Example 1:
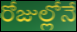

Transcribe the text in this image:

రోజుల్లోనే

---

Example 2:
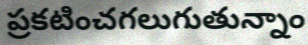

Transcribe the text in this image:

ప్రకటించగలుగుతున్నాం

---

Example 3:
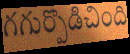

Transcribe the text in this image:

గగుర్పొడిచింది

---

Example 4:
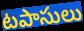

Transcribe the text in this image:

టపాసులు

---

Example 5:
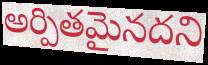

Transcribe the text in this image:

అర్పితమైనదని